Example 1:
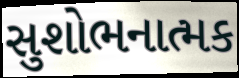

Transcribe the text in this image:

સુશોભનાત્મક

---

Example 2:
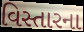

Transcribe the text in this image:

વિસ્તારના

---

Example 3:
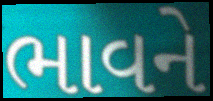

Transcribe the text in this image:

ભાવને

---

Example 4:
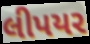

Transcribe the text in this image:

લીપયર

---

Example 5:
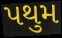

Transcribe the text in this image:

પથુમ